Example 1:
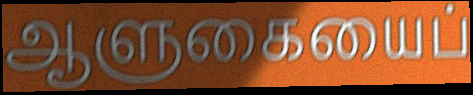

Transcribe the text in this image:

ஆளுகையைப்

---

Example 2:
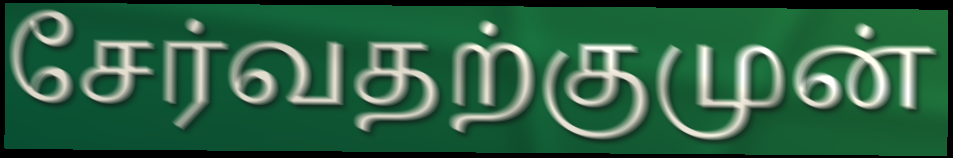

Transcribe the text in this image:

சேர்வதற்குமுன்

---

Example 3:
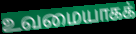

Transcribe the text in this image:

உவமையாகக்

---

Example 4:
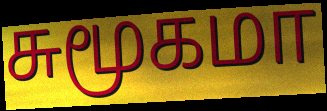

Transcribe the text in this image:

சுமூகமா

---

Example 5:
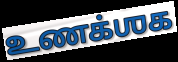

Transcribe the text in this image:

உணக்ஶக